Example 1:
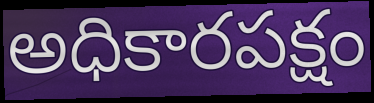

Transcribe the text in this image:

అధికారపక్షం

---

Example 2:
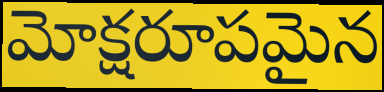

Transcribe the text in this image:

మోక్షరూపమైన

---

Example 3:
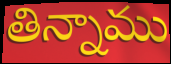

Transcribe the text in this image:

తిన్నాము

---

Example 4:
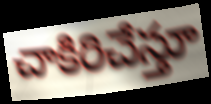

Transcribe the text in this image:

చాకిరిచేస్తూ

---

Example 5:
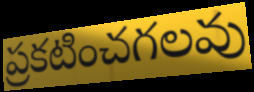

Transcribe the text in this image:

ప్రకటించగలవు